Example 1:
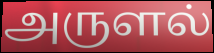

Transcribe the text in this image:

அருளல்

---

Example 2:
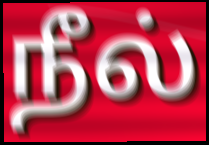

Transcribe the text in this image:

நீல்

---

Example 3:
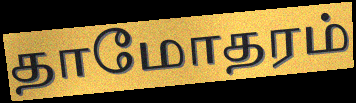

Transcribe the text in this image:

தாமோதரம்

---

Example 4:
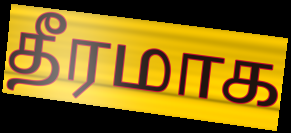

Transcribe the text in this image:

தீரமாக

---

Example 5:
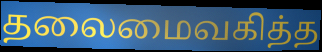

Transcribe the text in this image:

தலைமைவகித்த